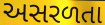
અસરળતા